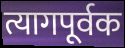
त्यागपूर्वक